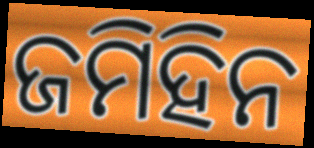
ଜମିହିନ